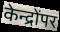
केन्द्रोंपर